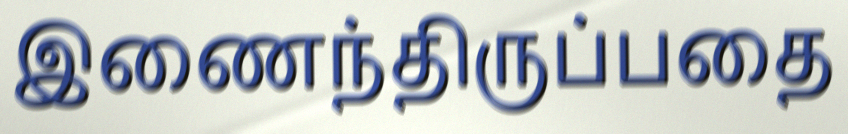
இணைந்திருப்பதை